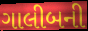
ગાલીબની